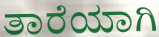
ತಾರೆಯಾಗಿ